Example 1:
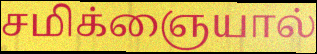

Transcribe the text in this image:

சமிக்ஞையால்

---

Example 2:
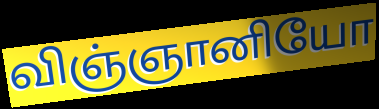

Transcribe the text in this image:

விஞ்ஞானியோ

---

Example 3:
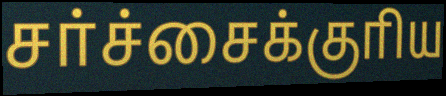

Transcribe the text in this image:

சர்ச்சைக்குரிய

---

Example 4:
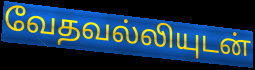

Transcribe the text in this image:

வேதவல்லியுடன்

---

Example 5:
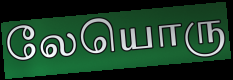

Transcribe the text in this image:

லேயொரு